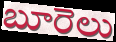
బూరెలు